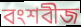
বংশবীজ